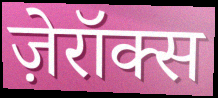
ज़ेरॉक्स